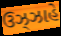
ઉઝ્ઝાહે